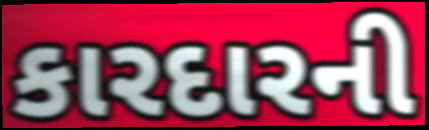
કારદારની